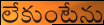
లేకుంటేను